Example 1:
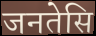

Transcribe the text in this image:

जनतेसि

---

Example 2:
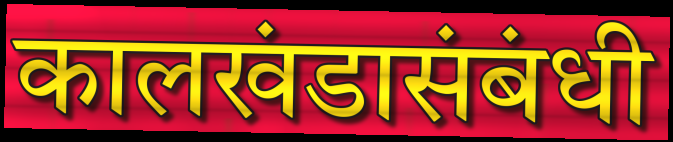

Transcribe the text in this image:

कालखंडासंबंधी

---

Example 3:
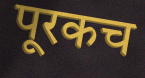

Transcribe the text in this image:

पूरकच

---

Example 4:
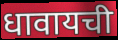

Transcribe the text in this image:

धावायची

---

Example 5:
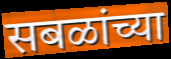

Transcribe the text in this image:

सबळांच्या